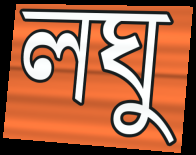
লঘু